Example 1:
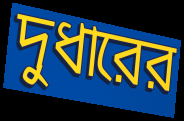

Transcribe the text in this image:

দুধারের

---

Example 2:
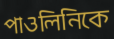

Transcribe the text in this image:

পাওলিনিকে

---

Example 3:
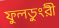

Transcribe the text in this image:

ফুলডুংরী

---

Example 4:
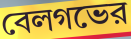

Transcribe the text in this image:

বেলগভের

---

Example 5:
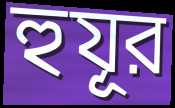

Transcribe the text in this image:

হুযূর